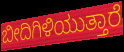
ಬೀದಿಗಿಳಿಯುತ್ತಾರೆ